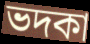
ভদকা